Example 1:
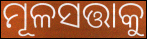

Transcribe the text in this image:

ମୂଳସତ୍ତାକୁ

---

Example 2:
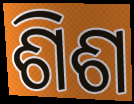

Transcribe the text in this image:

ଶିଶ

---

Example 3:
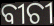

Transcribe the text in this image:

ବୀଚୀ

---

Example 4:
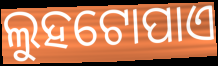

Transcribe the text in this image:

ଲୁହଟୋପାଏ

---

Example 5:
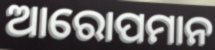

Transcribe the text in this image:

ଆରୋପମାନ